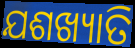
ଯଶଖ୍ୟାତି